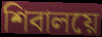
শিবালয়ে